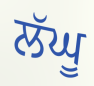
ਲੱਘੂ